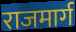
राजमार्ग